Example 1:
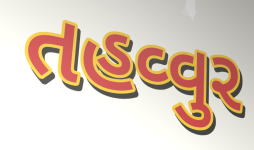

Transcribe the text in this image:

તહવ્વુર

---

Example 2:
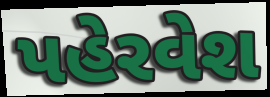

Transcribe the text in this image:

પહેરવેશ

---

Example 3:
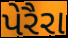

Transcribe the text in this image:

પેરૈરા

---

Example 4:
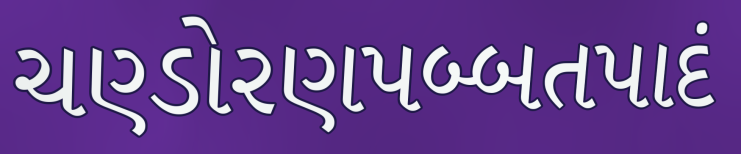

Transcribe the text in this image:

ચણ્ડોરણપબ્બતપાદં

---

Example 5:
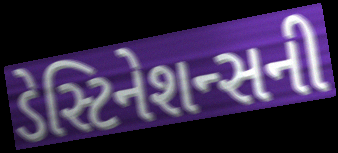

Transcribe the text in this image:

ડેસ્ટિનેશન્સની